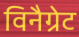
विनैग्रेट